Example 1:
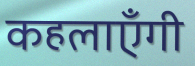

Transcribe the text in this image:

कहलाएँगी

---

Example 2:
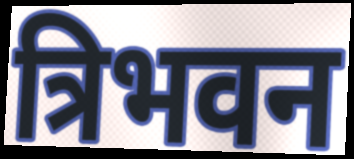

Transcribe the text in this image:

त्रिभवन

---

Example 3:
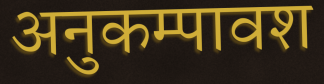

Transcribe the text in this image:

अनुकम्पावश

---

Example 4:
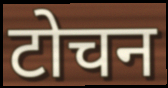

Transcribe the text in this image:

टोचन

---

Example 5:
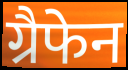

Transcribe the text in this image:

ग्रैफेन